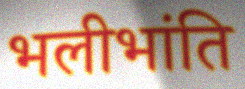
भलीभांति